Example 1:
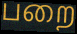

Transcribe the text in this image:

பறை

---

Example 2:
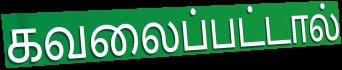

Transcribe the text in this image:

கவலைப்பட்டால்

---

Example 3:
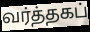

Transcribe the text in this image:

வர்த்தகப்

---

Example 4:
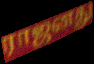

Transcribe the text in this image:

ராஜனது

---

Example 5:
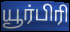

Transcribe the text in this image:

யூர்பிரி